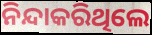
ନିନ୍ଦାକରିଥିଲେ